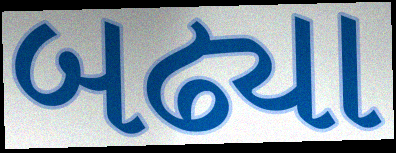
બઢ્યા